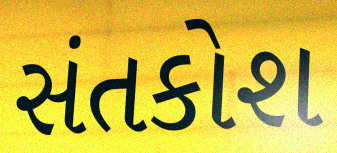
સંતકોશ